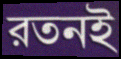
রতনই